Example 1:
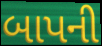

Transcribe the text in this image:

બાપની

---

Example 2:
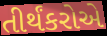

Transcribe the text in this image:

તીર્થંકરોએ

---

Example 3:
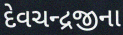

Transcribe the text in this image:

દેવચન્દ્રજીના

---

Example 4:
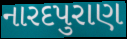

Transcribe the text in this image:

નારદપુરાણ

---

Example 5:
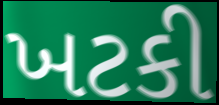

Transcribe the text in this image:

ખટકી